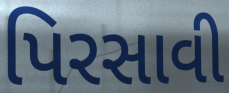
પિરસાવી